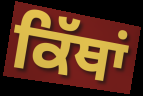
ਕਿੱਥਾਂ